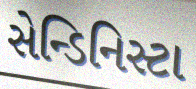
સેન્ડિનિસ્ટા